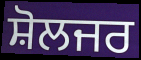
ਸ਼ੋਲਜਰ